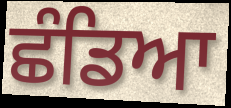
ਛੰਡਿਆ